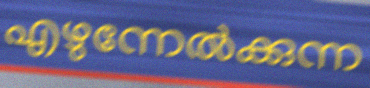
എഴുന്നേൽക്കുന്ന